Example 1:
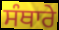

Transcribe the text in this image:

ਸੰਥਾਰੇ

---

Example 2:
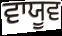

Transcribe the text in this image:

ਵਾਯੂਵ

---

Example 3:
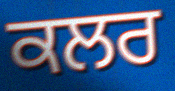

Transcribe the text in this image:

ਕਲਰ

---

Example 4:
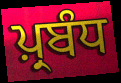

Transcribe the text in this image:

ਪ਼੍ਰਬੰਧ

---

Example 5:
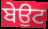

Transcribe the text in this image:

ਬੇਉਟ